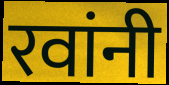
रवांनी